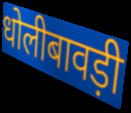
धोलीबावड़ी